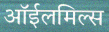
ऑईलमिल्स